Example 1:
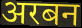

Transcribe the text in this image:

अरबन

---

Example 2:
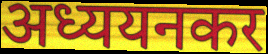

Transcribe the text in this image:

अध्ययनकर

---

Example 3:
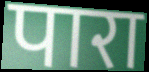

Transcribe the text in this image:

पारा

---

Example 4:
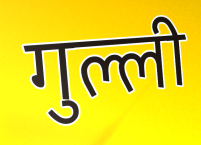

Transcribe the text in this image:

गुल्ली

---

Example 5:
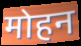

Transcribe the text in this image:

मोहन